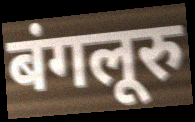
बंगलूरु